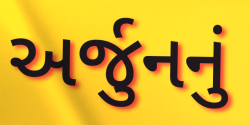
અર્જુનનું